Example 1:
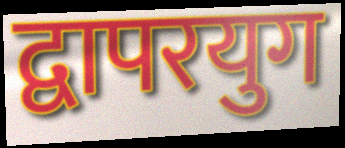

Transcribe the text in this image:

द्वापरयुग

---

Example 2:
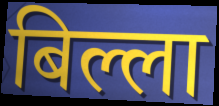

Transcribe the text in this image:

बिल्ला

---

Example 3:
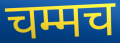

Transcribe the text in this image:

चम्मच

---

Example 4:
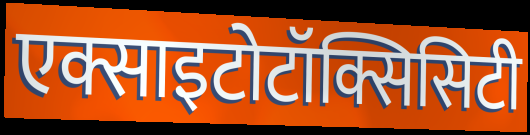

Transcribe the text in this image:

एक्साइटोटॉक्सिसिटी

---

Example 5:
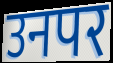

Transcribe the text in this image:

उनपर